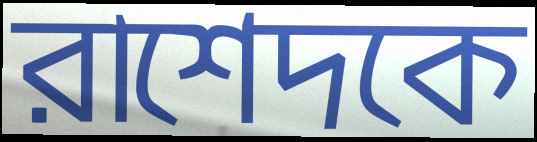
রাশেদকে